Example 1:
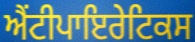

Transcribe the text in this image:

ਐਂਟੀਪਾਇਰੇਟਿਕਸ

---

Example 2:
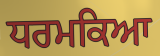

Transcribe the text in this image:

ਧਰਮਕਿਆ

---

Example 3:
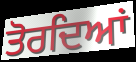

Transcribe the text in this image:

ਤੋਰਦਿਆਂ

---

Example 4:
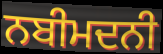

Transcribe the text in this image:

ਨਬੀਮਦਨੀ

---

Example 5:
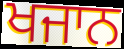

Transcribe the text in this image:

ਖਜਾਨ